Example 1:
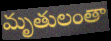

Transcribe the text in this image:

మృతులంతా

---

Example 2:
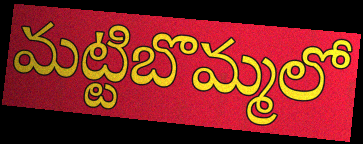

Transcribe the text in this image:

మట్టిబొమ్మలో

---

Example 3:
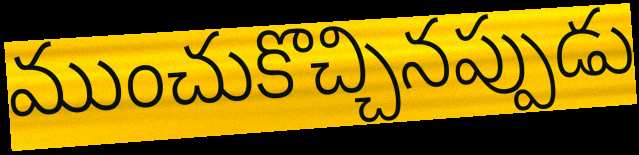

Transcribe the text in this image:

ముంచుకొచ్చినప్పుడు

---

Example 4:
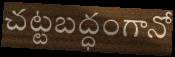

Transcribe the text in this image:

చట్టబద్ధంగానో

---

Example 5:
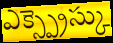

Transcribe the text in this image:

ఎక్స్ప్రెస్కు